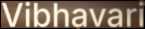
Vibhavari